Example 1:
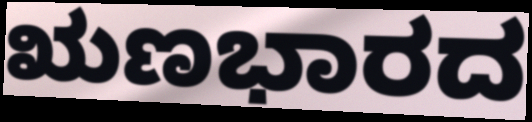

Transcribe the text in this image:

ಋಣಭಾರದ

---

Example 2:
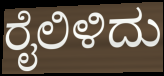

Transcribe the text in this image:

ರೈಲಿಳಿದು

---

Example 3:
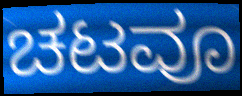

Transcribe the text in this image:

ಚಟವೂ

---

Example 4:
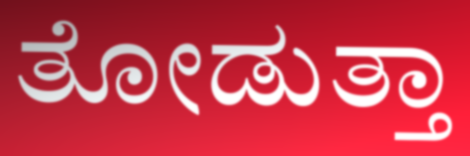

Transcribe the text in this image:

ತೋಡುತ್ತಾ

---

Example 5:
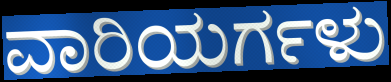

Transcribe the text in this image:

ವಾರಿಯರ್ಗಳು